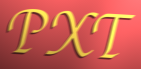
PXT